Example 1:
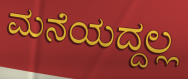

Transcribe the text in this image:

ಮನೆಯದ್ದಲ್ಲ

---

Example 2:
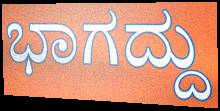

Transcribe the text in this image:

ಭಾಗದ್ದು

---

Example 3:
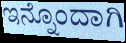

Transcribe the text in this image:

ಇನ್ನೊಂದಾಗಿ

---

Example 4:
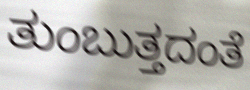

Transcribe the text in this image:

ತುಂಬುತ್ತದಂತೆ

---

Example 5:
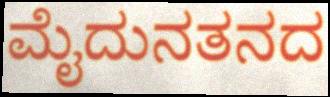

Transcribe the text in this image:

ಮೈದುನತನದ